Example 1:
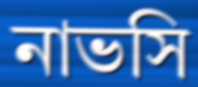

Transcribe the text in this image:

নাভসি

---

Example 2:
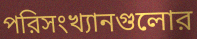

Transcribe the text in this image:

পরিসংখ্যানগুলোর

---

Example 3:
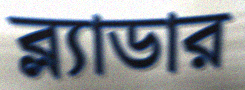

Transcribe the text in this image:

ব্ল্যাডার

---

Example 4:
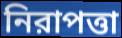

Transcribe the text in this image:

নিরাপত্তা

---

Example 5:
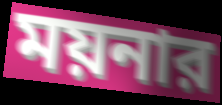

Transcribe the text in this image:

ময়নার